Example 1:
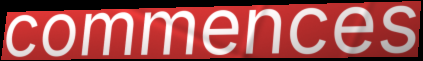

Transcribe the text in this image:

commences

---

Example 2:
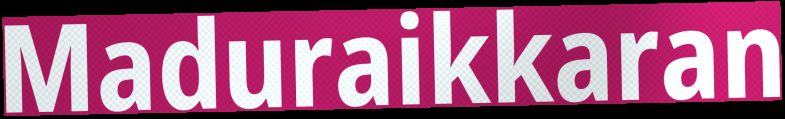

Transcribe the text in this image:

Maduraikkaran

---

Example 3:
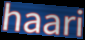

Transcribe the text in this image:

haari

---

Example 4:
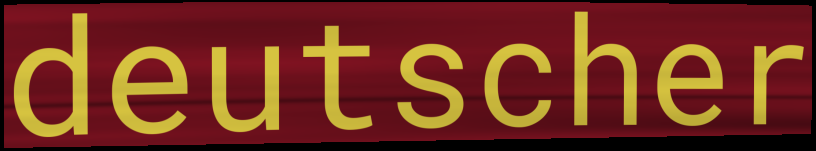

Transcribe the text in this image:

deutscher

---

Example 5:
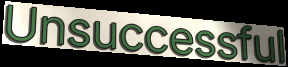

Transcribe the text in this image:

Unsuccessful